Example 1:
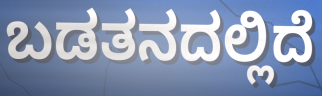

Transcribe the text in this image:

ಬಡತನದಲ್ಲಿದೆ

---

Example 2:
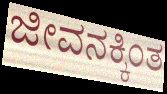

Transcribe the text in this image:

ಜೀವನಕ್ಕಿಂತ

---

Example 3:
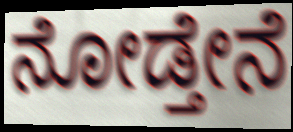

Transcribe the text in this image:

ನೋಡ್ತೇನೆ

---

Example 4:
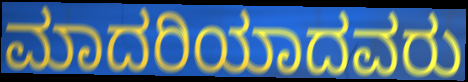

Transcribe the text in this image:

ಮಾದರಿಯಾದವರು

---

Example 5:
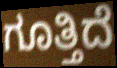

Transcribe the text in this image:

ಗೂತ್ತಿದೆ